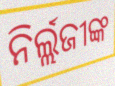
ନିର୍ଲ୍ଲଜୀଙ୍କ